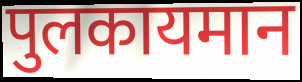
पुलकायमान